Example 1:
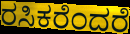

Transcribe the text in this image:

ರಸಿಕರೆಂದರೆ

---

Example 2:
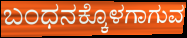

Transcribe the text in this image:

ಬಂಧನಕ್ಕೊಳಗಾಗುವ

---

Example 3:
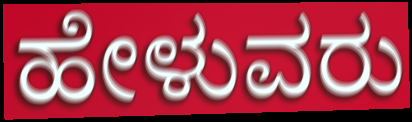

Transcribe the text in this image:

ಹೇಳುವರು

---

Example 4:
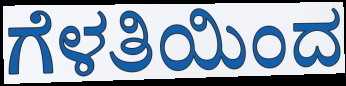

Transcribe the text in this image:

ಗೆಳತಿಯಿಂದ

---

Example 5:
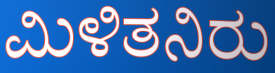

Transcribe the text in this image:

ಮಿಳಿತನಿರು